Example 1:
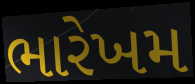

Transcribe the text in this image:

ભારેખમ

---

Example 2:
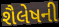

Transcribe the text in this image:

શૈલેષની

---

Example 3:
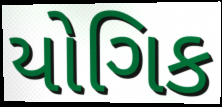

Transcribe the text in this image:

યોગિક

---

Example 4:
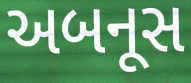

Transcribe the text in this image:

અબનૂસ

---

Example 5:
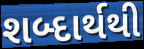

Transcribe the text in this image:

શબ્દાર્થથી